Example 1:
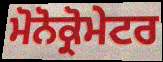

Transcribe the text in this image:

ਮੋਨੋਕ੍ਰੋਮੇਟਰ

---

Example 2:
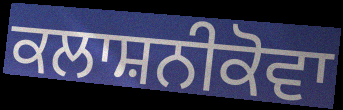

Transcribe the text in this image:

ਕਲਾਸ਼ਨੀਕੋਵਾ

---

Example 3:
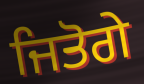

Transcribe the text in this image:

ਜਿਤੋਗੇ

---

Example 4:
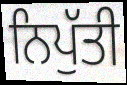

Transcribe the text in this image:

ਨਿਪੁੱਤੀ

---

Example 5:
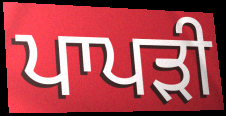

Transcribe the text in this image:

ਪਾਪੜੀ